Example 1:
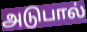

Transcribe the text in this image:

அடுபால்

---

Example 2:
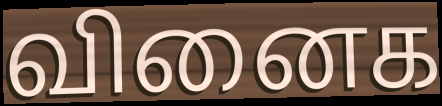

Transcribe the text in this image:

வினைக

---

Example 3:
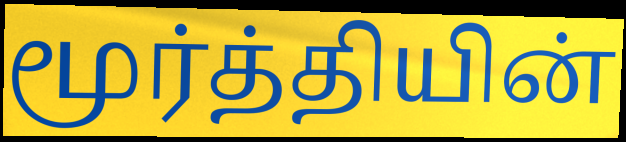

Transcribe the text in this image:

மூர்த்தியின்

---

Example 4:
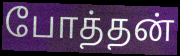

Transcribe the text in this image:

போத்தன்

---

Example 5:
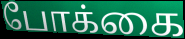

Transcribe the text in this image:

போக்கை